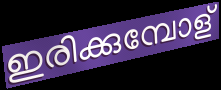
ഇരിക്കുമ്പോള്